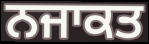
ਨਜਾਕਤ